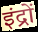
इंद्रों